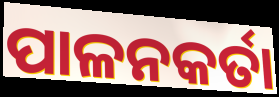
ପାଳନକର୍ତା